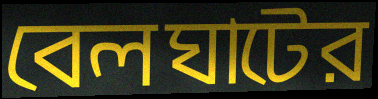
বেলঘাটের